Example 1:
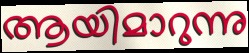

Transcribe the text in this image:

ആയിമാറുന്നു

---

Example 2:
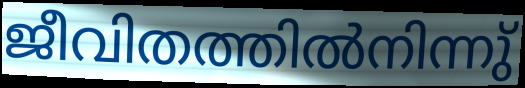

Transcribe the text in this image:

ജീവിതത്തിൽനിന്നു്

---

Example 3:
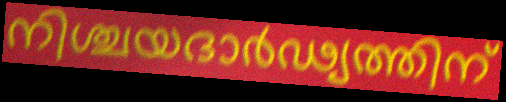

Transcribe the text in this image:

നിശ്ചയദാർഢ്യത്തിന്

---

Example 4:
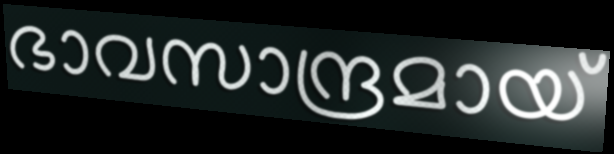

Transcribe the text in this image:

ഭാവസാന്ദ്രമായ്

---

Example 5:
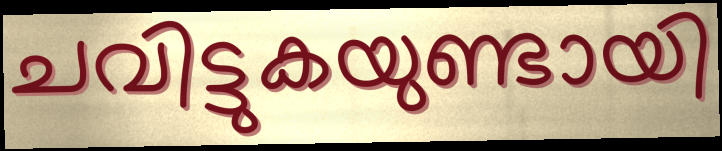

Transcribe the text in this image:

ചവിട്ടുകയുണ്ടായി